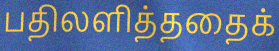
பதிலளித்ததைக்